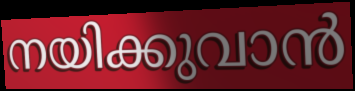
നയിക്കുവാൻ